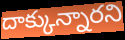
దాక్కున్నారని